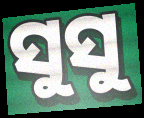
ସୁସୁ